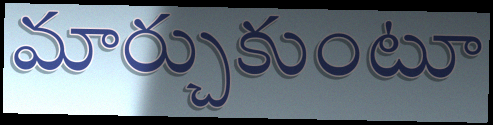
మార్చుకుంటూ